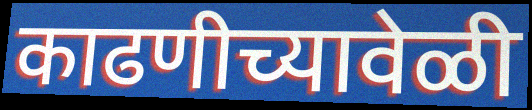
काढणीच्यावेळी